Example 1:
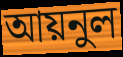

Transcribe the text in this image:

আয়নুল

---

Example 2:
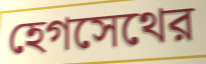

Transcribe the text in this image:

হেগসেথের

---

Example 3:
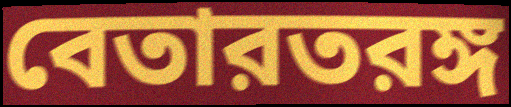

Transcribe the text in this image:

বেতারতরঙ্গ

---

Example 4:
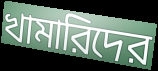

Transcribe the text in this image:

খামারিদের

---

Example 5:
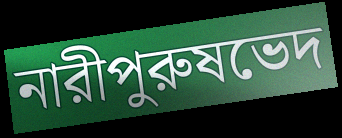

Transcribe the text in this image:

নারীপুরুষভেদ